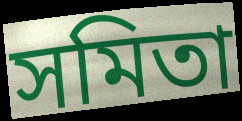
সমিতা